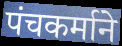
पंचकर्माने